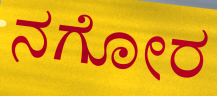
ನಗೋರ